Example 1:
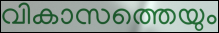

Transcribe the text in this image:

വികാസത്തെയും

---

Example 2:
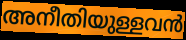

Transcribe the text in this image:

അനീതിയുള്ളവൻ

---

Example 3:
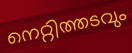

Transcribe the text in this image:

നെറ്റിത്തടവും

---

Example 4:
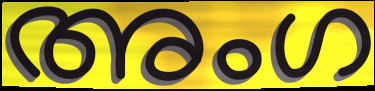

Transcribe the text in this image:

അംഗ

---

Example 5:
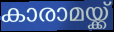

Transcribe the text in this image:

കാരാമയ്ക്ക്